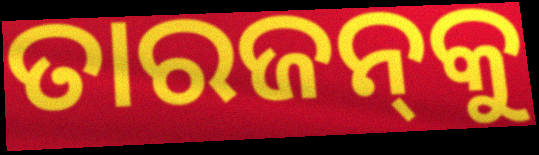
ତାରଜନ୍‌କୁ